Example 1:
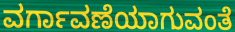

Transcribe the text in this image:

ವರ್ಗಾವಣೆಯಾಗುವಂತೆ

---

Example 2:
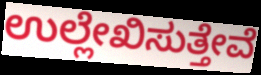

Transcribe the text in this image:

ಉಲ್ಲೇಖಿಸುತ್ತೇವೆ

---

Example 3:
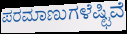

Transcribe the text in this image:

ಪರಮಾಣುಗಳೆಷ್ಟಿವೆ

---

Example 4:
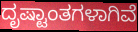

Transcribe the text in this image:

ದೃಷ್ಟಾಂತಗಳಾಗಿವೆ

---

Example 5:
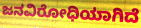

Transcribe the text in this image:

ಜನವಿರೋಧಿಯಾಗಿದೆ